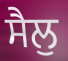
ਸੈਲੁ